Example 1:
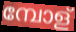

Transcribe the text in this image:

മ്പോള്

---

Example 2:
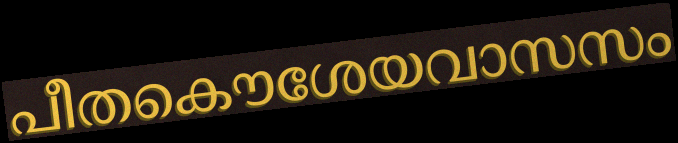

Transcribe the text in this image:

പീതകൌശേയവാസസം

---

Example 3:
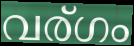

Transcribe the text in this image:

വര്ഗം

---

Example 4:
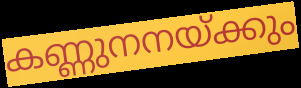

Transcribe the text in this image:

കണ്ണുനനയ്ക്കും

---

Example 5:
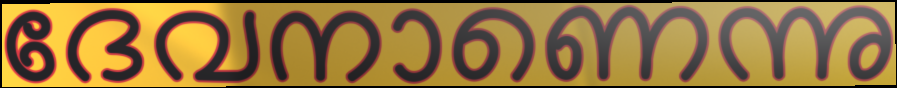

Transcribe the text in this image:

ദേവനാണെന്നു